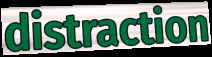
distraction